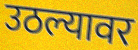
उठल्यावर